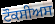
ਟੌਕਸੀਅਸ